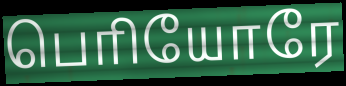
பெரியோரே